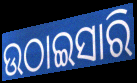
ଉଠାଇସାରି